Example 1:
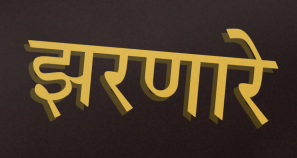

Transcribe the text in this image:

झरणारे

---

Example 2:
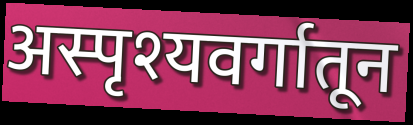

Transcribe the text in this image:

अस्पृश्यवर्गातून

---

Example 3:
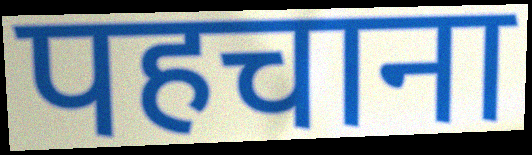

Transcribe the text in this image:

पहचाना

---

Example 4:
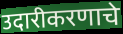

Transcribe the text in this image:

उदारीकरणाचे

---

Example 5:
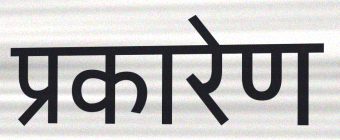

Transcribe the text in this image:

प्रकारेण